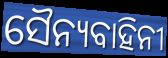
ସୈନ୍ଯବାହିନୀ